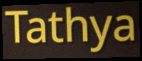
Tathya